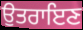
ਉਤਰਾਇਣ